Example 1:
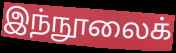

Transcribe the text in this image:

இந்நூலைக்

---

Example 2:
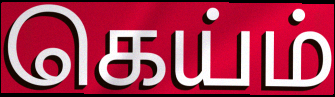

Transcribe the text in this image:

கெய்ம்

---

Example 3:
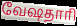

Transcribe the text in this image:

வேஷதாரி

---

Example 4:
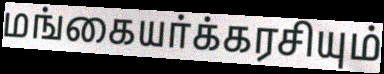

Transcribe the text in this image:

மங்கையர்க்கரசியும்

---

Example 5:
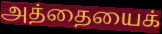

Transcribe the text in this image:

அத்தையைக்